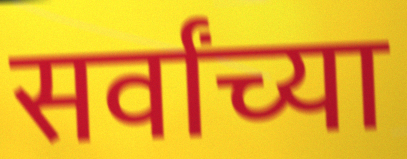
सर्वांच्या